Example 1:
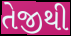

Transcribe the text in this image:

તેજીથી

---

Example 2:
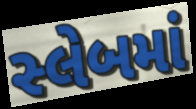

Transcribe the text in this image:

સ્લેબમાં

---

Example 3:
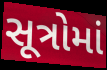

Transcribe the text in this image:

સૂત્રોમાં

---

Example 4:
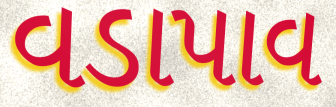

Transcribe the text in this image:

વડાપાવ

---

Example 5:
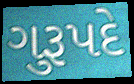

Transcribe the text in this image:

ગુરૂપદે